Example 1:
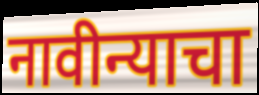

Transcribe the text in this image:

नावीन्याचा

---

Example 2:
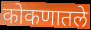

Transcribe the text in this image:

कोकणातले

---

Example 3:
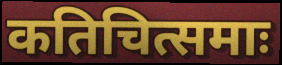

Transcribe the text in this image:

कतिचित्समाः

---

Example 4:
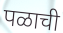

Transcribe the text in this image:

पळाची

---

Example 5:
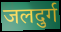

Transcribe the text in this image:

जलदुर्ग